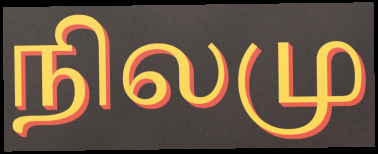
நிலமு